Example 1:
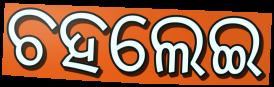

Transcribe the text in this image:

ଚହଲେଇ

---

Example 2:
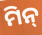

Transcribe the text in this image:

ମିନ୍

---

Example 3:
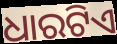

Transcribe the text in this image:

ଧାରଟିଏ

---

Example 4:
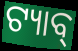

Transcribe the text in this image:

ଟ୍ୟାବ୍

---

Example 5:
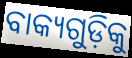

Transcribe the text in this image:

ବାକ୍ୟଗୁଡ଼ିକୁ